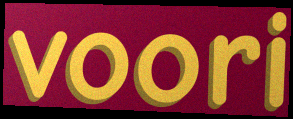
voori